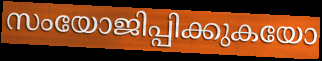
സംയോജിപ്പിക്കുകയോ